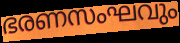
ഭരണസംഘവും